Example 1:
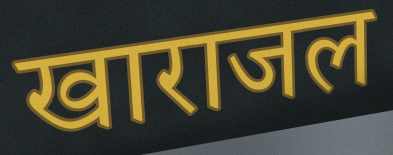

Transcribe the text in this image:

खाराजल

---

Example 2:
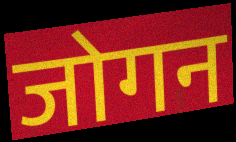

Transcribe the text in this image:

जोगन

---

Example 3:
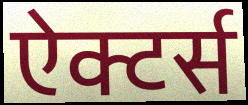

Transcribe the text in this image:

ऐक्टर्स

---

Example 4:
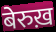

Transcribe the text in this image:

बेरुख़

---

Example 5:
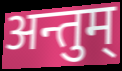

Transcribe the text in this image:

अन्तुम्